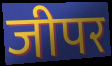
जीपर